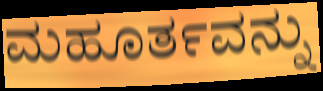
ಮಹೂರ್ತವನ್ನು